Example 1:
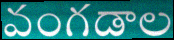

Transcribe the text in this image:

వంగడాల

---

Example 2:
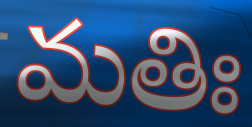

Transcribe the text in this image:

మతిః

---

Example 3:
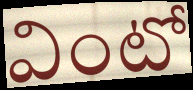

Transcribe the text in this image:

వింటో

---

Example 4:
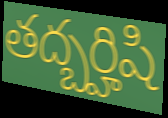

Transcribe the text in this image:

తద్బర్హిషి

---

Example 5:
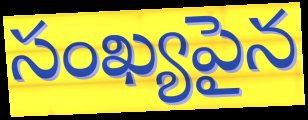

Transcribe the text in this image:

సంఖ్యపైన